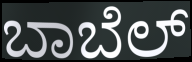
ಬಾಬೆಲ್